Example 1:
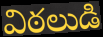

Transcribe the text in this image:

విఠలుడి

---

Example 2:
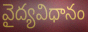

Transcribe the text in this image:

వైద్యవిధానం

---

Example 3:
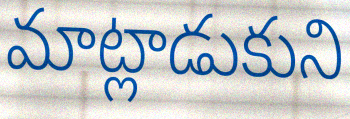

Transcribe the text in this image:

మాట్లాడుకుని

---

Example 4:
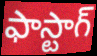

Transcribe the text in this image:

ఫాస్టాగ్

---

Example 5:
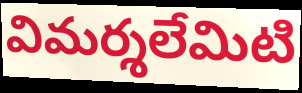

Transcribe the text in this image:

విమర్శలేమిటి